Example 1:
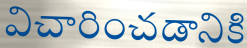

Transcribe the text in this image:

విచారించడానికి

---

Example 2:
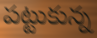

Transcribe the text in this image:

పట్టుకున్న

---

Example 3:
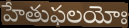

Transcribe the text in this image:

హేతుఫలయోః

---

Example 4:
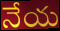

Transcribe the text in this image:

నేయ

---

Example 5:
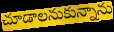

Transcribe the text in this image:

చూడాలనుకున్నాను